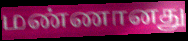
மண்ணானது